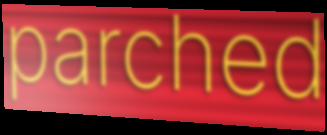
parched